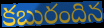
కబురందిన